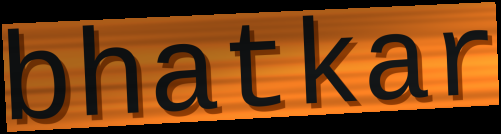
bhatkar